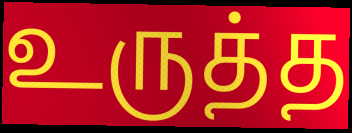
உருத்த